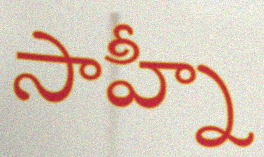
సాహ్నీ